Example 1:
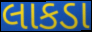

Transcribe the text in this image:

લાકડા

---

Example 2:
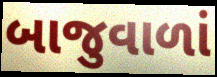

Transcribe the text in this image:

બાજુવાળાં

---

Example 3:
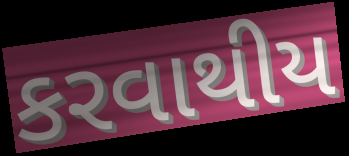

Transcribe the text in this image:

કરવાથીય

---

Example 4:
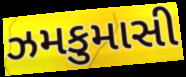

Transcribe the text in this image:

ઝમકુમાસી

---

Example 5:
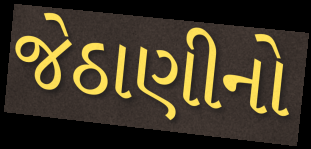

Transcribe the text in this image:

જેઠાણીનો